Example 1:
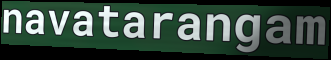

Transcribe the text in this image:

navatarangam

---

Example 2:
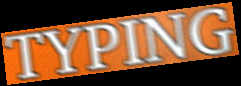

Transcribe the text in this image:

TYPING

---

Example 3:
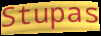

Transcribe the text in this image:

Stupas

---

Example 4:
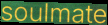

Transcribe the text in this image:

soulmate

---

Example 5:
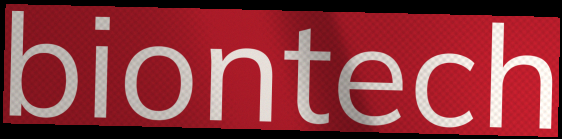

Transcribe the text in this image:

biontech